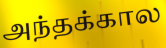
அந்தக்கால